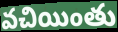
వచియింతు